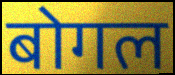
बोगल